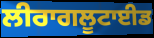
ਲੀਰਾਗਲੂਟਾਈਡ